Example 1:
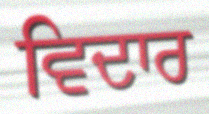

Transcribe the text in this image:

ਵਿਦਾਰ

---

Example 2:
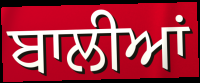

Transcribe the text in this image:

ਬਾਲੀਆਂ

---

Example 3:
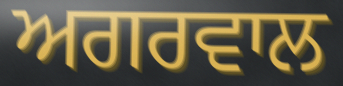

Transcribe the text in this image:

ਅਗਰਵਾਲ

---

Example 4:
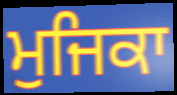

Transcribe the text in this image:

ਮੁਜਿਕਾ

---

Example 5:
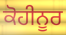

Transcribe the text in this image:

ਕੋਹੀਨੂਰ